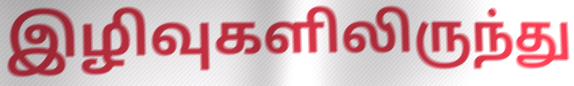
இழிவுகளிலிருந்து